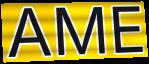
AME